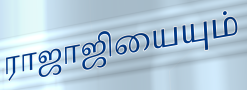
ராஜாஜியையும்